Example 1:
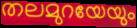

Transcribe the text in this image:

തലമുറയേയും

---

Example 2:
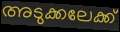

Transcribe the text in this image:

അടുക്കലേക്ക്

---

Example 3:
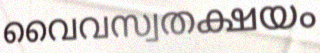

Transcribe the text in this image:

വൈവസ്വതക്ഷയം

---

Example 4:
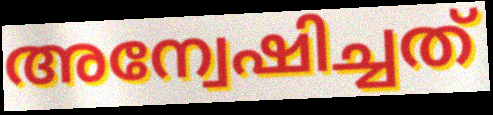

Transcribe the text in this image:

അന്വേഷിച്ചത്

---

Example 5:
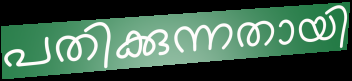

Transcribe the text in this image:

പതിക്കുന്നതായി